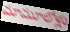
మామూలోళ్లు